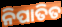
ନିପାତିତ